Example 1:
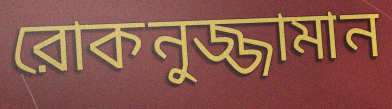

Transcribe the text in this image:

রোকনুজ্জামান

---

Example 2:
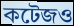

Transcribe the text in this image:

কটেজও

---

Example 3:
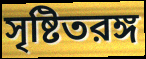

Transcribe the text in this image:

সৃষ্টিতরঙ্গ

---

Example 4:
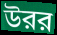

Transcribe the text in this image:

উরর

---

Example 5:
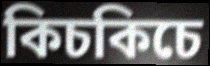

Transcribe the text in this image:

কিচকিচে